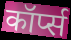
कॉर्प्स